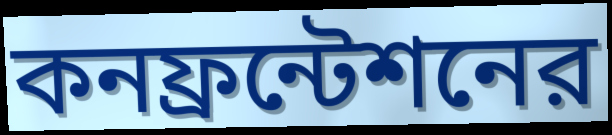
কনফ্রন্টেশনের